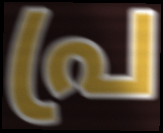
പ്ര